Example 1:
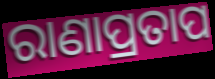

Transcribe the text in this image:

ରାଣାପ୍ରତାପ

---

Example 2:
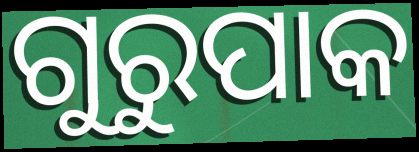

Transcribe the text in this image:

ଗୁରୁପାକ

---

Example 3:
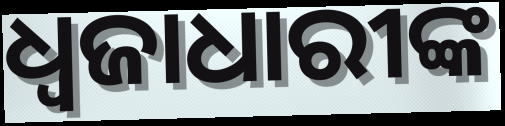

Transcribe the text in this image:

ଧ୍ୱଜାଧାରୀଙ୍କ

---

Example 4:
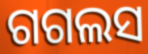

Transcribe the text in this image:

ଗଗଲସ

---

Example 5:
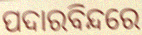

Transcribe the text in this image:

ପଦାରବିନ୍ଦରେ